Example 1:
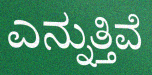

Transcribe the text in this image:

ಎನ್ನುತ್ತಿವೆ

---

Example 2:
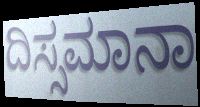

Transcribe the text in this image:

ದಿಸ್ಸಮಾನಾ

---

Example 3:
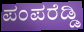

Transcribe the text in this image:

ಪಂಪರೆಡ್ಡಿ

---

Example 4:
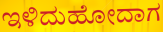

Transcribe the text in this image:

ಇಳಿದುಹೋದಾಗ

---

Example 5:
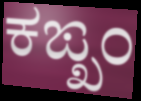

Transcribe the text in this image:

ಕಙ್ಖಂ